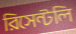
রিসেন্টলি